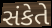
સંકેતે